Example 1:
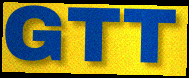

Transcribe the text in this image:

GTT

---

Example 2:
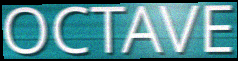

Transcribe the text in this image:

OCTAVE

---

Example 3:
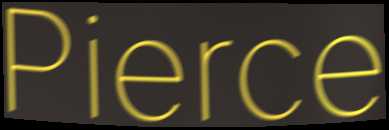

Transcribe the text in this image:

Pierce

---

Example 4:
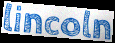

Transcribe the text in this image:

lincoln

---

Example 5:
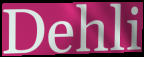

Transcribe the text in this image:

Dehli